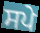
ਸਪੇ